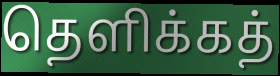
தெளிக்கத்